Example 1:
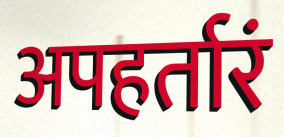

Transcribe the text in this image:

अपहर्तारं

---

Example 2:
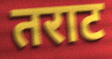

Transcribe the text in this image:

तराट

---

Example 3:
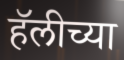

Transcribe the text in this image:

हॅलीच्या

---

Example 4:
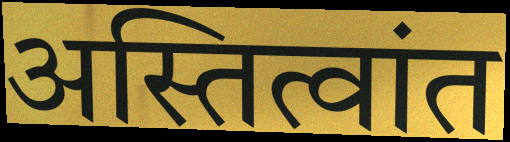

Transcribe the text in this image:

अस्तित्वांत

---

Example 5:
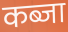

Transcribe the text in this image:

कब्जा